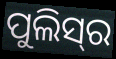
ପୁଲିସ୍‍ର